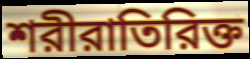
শরীরাতিরিক্ত